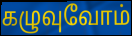
கழுவுவோம்